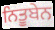
ਨਿਤੂਬੇਨ